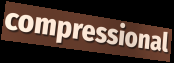
compressional